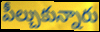
పీల్చుకున్నారు